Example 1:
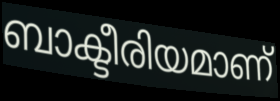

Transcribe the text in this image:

ബാക്ടീരിയമാണ്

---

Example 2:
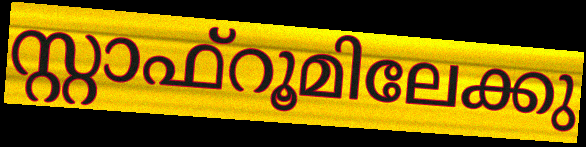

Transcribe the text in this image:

സ്റ്റാഫ്റൂമിലേക്കു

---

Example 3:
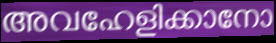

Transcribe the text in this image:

അവഹേളിക്കാനോ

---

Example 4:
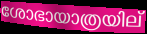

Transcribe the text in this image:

ശോഭായാത്രയില്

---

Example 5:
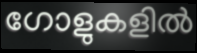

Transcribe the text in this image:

ഗോളുകളിൽ